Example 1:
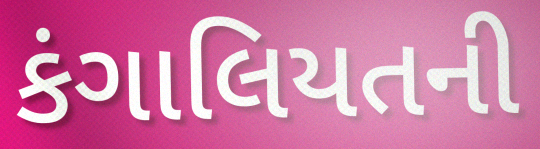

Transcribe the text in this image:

કંગાલિયતની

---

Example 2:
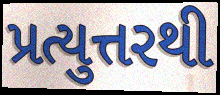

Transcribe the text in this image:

પ્રત્યુત્તરથી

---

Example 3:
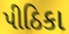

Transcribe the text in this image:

પીઠિકા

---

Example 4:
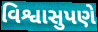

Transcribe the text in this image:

વિશ્વાસુપણે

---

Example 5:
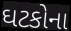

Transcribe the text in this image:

ઘટકોના